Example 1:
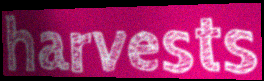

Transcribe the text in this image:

harvests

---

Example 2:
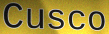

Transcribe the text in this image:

Cusco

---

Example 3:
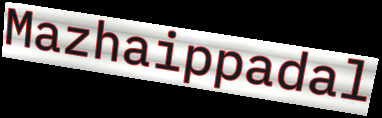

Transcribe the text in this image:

Mazhaippadal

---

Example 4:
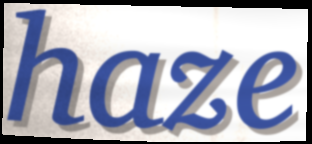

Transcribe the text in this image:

haze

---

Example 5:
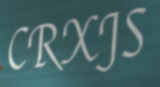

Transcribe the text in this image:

CRXJS